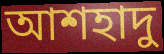
আশহাদু